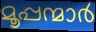
മൂപ്പന്മാർ